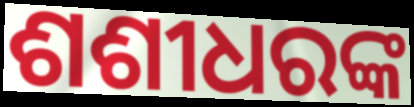
ଶଶୀଧରଙ୍କ